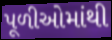
પૂળીઓમાંથી